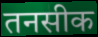
तनसीक